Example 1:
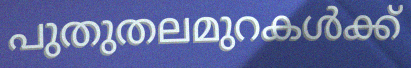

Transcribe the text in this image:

പുതുതലമുറകൾക്ക്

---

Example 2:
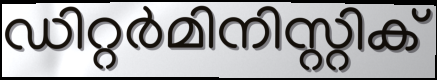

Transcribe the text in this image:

ഡിറ്റർമിനിസ്റ്റിക്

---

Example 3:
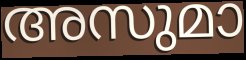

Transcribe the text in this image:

അസുമാ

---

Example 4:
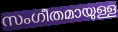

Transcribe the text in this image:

സംഗീതമായുള്ള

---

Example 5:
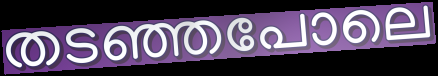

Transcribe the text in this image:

തടഞ്ഞപോലെ